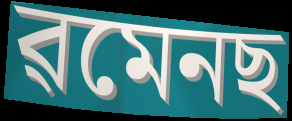
ৱমেনছ